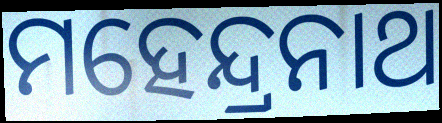
ମହେନ୍ଦ୍ରନାଥ